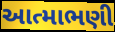
આત્માભણી